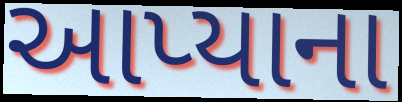
આપ્યાના